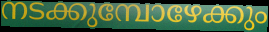
നടക്കുമ്പോഴേക്കും